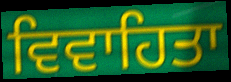
ਵਿਵਾਹਿਤਾ